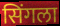
सिंगला